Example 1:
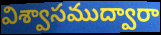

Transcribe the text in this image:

విశ్వాసముద్వారా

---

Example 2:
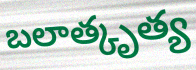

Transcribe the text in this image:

బలాత్కృత్య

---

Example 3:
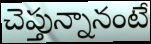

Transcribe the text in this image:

చెప్తున్నానంటే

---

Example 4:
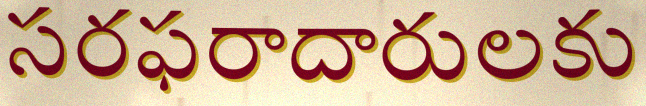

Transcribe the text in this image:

సరఫరాదారులకు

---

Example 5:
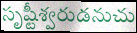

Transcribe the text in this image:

సృష్టీశ్వరుడనుచు